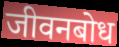
जीवनबोध